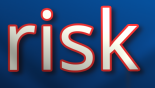
risk